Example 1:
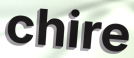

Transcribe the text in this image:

chire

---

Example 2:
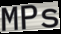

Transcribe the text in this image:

MPs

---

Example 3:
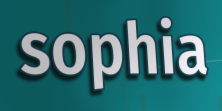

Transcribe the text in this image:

sophia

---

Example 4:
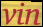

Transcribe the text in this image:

vin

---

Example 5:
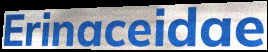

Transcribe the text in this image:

Erinaceidae